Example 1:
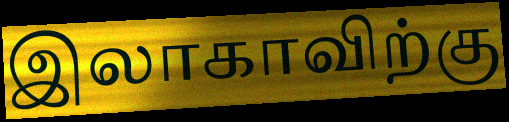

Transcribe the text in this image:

இலாகாவிற்கு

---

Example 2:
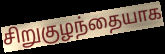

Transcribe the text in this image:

சிறுகுழந்தையாக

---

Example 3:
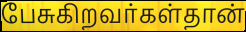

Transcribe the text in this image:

பேசுகிறவர்கள்தான்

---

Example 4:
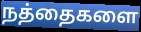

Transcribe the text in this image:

நத்தைகளை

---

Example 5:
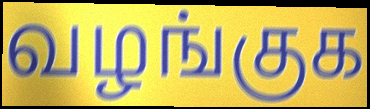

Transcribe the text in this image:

வழங்குக